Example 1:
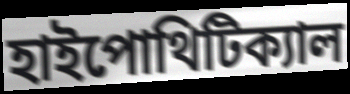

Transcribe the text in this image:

হাইপোথিটিক্যাল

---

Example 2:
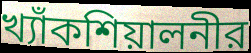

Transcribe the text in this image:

খ্যাঁকশিয়ালনীর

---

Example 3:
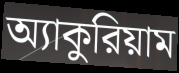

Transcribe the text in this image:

অ্যাকুরিয়াম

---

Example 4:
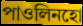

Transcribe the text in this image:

পাওলিনহো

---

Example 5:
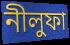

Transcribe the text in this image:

নীলুফা